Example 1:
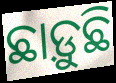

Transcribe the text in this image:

ଛାଡ଼ୁଛି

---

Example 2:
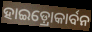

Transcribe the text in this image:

ହାଇଡ଼୍ରୋକାର୍ବନ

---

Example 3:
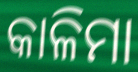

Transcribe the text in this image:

କାଳିମା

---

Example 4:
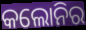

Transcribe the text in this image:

କଲୋନିର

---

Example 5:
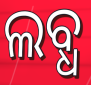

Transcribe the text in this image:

ଲବ୍ଧ